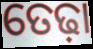
ତେଢ଼ା